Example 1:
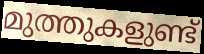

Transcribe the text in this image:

മുത്തുകളുണ്ട്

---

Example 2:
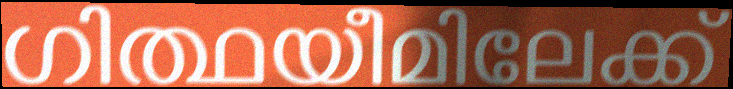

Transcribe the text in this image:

ഗിത്ഥയീമിലേക്ക്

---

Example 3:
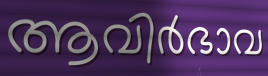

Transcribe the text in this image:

ആവിർഭാവ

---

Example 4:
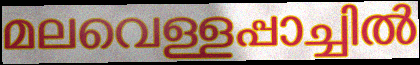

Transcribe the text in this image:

മലവെള്ളപ്പാച്ചിൽ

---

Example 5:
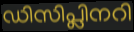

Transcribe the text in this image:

ഡിസിപ്ലിനറി